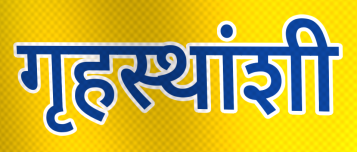
गृहस्थांशी